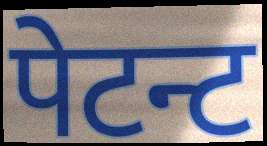
पेटन्ट